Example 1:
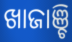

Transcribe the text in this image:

ଖାଜାଞ୍ଚି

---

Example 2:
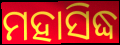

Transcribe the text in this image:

ମହାସିଦ୍ଧ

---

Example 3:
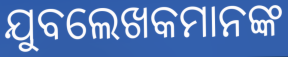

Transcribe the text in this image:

ଯୁବଲେଖକମାନଙ୍କ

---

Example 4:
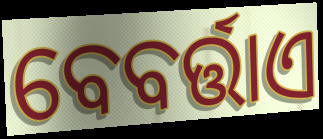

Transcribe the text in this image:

ବେବର୍ତ୍ତାଏ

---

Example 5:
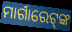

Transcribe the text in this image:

ମାର୍ଗାରେଟ୍‍ଙ୍କ